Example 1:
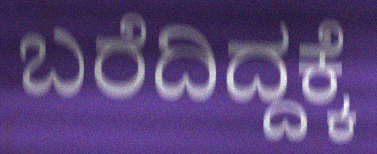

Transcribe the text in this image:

ಬರೆದಿದ್ದಕ್ಕೆ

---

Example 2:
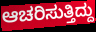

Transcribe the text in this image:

ಆಚರಿಸುತ್ತಿದ್ದು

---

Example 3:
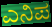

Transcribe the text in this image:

ಎನಿಪ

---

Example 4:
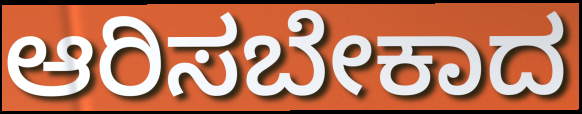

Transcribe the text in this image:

ಆರಿಸಬೇಕಾದ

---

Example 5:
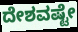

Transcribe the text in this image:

ದೇಶವಷ್ಟೇ